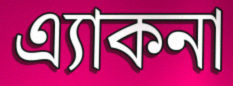
এ্যাকনা